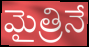
మైత్రినే